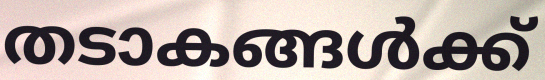
തടാകങ്ങൾക്ക്